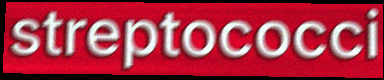
streptococci